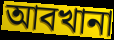
আবখানা